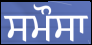
ਸਮੌਸਾ